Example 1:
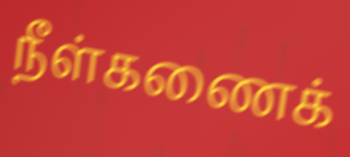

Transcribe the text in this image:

நீள்கணைக்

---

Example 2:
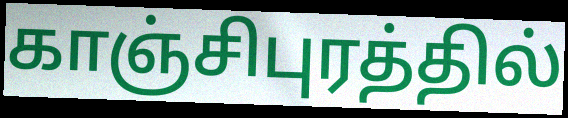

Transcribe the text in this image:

காஞ்சிபுரத்தில்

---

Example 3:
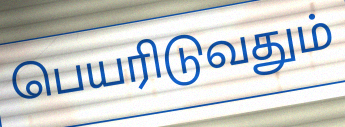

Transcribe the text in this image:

பெயரிடுவதும்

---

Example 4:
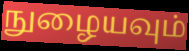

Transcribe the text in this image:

நுழையவும்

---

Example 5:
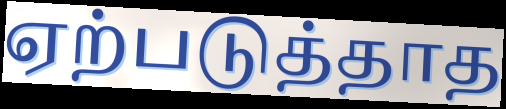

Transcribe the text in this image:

ஏற்படுத்தாத